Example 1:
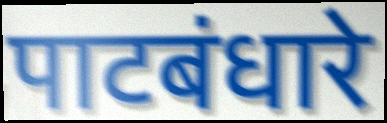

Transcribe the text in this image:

पाटबंधारे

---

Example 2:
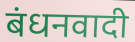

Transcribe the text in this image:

बंधनवादी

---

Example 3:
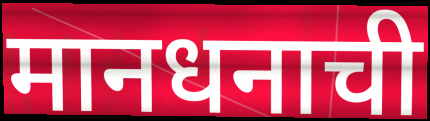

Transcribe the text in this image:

मानधनाची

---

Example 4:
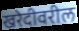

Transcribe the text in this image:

खरेदीवरील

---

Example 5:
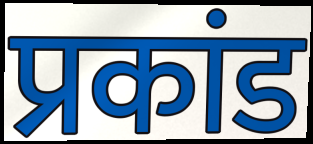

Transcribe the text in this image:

प्रकांड